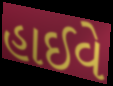
હાઈવે